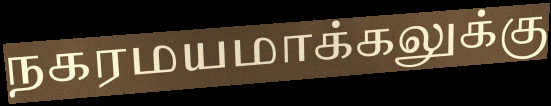
நகரமயமாக்கலுக்கு